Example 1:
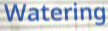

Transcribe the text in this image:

Watering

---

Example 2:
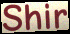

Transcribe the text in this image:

Shir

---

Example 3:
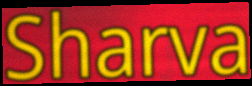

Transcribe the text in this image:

Sharva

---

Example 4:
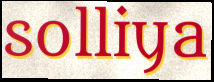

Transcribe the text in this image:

solliya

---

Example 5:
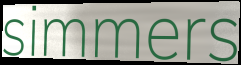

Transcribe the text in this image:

simmers